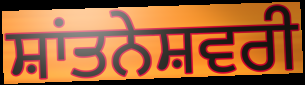
ਸ਼ਾਂਤਨੇਸ਼ਵਰੀ